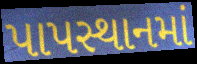
પાપસ્થાનમાં